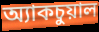
অ্যাকচুয়াল